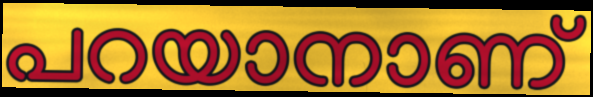
പറയാനാണ്